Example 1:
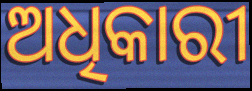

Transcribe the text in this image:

ଅଧିକାରୀ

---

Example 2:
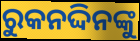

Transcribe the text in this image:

ରୁକନଦ୍ଦିନଙ୍କୁ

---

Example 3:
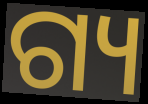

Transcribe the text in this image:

ଗ୍ୟ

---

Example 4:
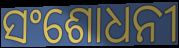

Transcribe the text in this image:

ସଂଶୋଧନୀ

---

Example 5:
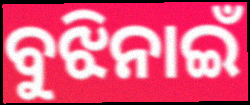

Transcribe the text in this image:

ବୁଝିନାଇଁ